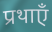
प्रथाएँ